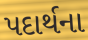
પદાર્થના